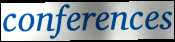
conferences